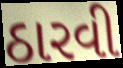
ઠારવી